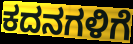
ಕದನಗಳಿಗೆ